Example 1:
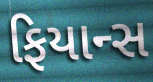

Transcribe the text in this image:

ફિયાન્સ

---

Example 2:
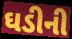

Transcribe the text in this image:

ઘડીની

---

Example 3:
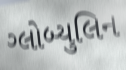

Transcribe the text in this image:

ગ્લોબ્યુલિન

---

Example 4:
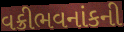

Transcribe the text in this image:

વક્રીભવનાંકની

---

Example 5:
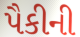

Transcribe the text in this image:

પૈકીની